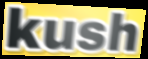
kush